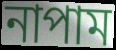
নাপাম